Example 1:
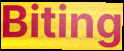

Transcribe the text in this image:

Biting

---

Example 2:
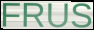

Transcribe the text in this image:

FRUS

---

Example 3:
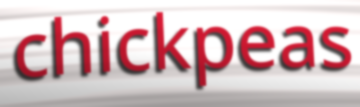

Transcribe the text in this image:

chickpeas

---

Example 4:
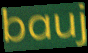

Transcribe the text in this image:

bauj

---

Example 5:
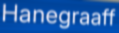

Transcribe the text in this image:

Hanegraaff